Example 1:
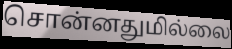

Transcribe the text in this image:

சொன்னதுமில்லை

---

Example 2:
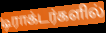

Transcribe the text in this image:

டிராக்டர்களில்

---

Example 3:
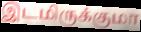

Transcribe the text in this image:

இடமிருக்குமா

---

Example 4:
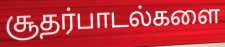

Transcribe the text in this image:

சூதர்பாடல்களை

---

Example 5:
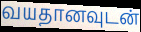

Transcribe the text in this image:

வயதானவுடன்